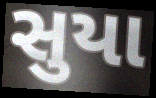
સુયા